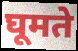
घूमते